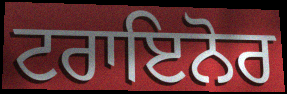
ਟਰਾਇਨੋਰ